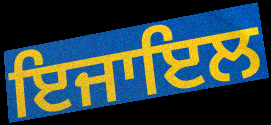
ਇਜਾਇਲ